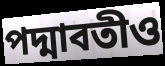
পদ্মাবতীও